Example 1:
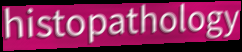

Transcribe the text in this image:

histopathology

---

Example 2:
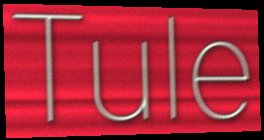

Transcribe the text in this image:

Tule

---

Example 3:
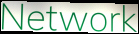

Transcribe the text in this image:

Network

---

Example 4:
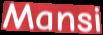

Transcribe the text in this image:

Mansi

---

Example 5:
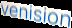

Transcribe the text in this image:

venision